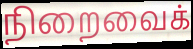
நிறைவைக்